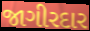
જાગીરદાર